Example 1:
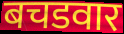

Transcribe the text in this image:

बचडवार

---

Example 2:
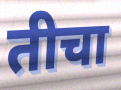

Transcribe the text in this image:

तीचा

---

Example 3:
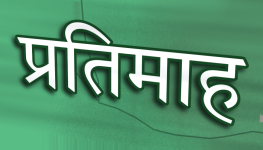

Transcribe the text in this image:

प्रतिमाह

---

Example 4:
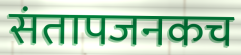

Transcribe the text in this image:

संतापजनकच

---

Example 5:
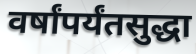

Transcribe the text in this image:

वर्षांपर्यंतसुद्धा